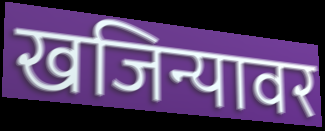
खजिन्यावर